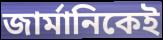
জার্মানিকেই